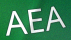
AEA